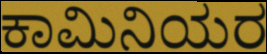
ಕಾಮಿನಿಯರ